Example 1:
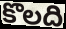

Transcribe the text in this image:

కొలది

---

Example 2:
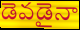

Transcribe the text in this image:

డెవడైనా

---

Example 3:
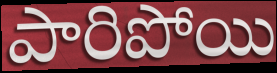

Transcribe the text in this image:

పారిపోయి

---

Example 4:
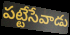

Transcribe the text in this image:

పట్టేసేవాడు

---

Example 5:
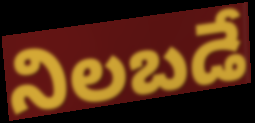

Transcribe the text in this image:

నిలబడే